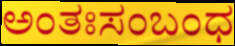
ಅಂತಃಸಂಬಂಧ